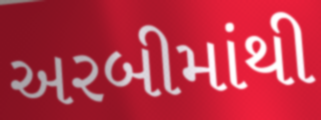
અરબીમાંથી